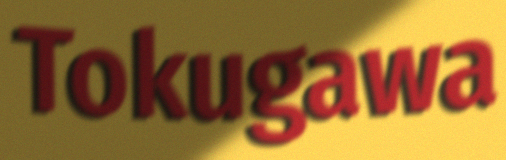
Tokugawa